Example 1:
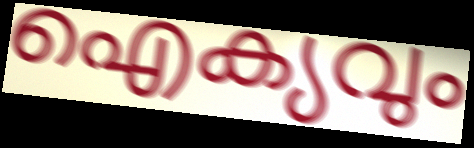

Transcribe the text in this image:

ഐക്യവും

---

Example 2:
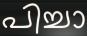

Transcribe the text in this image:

പിച്ചാ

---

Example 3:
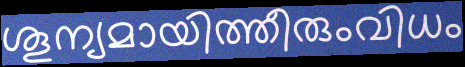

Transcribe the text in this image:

ശൂന്യമായിത്തീരുംവിധം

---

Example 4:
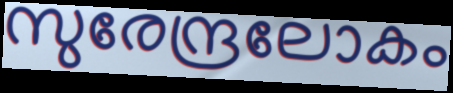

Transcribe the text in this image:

സുരേന്ദ്രലോകം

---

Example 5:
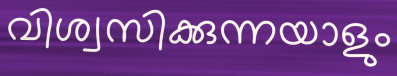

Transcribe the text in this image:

വിശ്വസിക്കുന്നയാളും